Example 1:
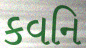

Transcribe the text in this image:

કવનિ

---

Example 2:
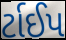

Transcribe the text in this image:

ર્ટાઈપ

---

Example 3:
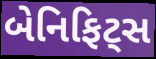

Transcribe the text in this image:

બેનિફિટ્સ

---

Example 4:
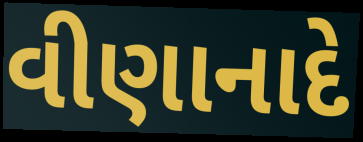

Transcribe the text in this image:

વીણાનાદે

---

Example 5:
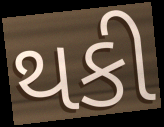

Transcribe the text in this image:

થકી